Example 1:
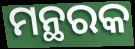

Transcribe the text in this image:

ମନ୍ଥରକ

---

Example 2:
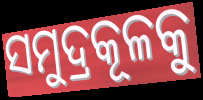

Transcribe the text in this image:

ସମୁଦ୍ରକୂଳକୁ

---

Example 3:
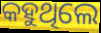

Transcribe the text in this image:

କହୁଥିଲେ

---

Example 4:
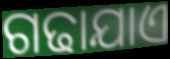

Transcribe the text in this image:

ଗଢାଯାଏ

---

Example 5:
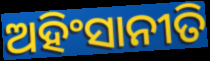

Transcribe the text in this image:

ଅହିଂସାନୀତି